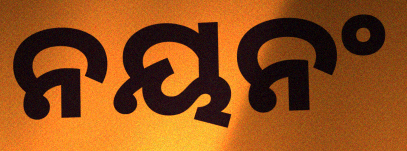
ନୟନଂ